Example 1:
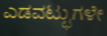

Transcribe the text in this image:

ಎಡವಟ್ಟುಗಳೇ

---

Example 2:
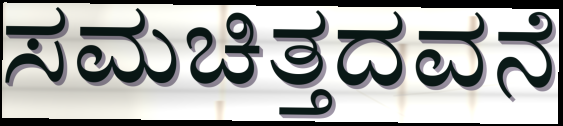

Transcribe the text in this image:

ಸಮಚಿತ್ತದವನೆ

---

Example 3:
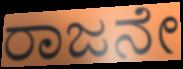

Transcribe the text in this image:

ರಾಜನೇ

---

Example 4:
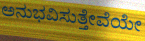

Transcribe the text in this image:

ಅನುಭವಿಸುತ್ತೇವೆಯೇ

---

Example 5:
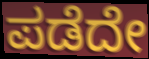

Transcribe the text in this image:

ಪಡೆದೇ